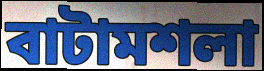
বাটামশলা